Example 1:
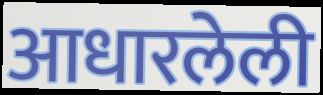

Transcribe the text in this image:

आधारलेली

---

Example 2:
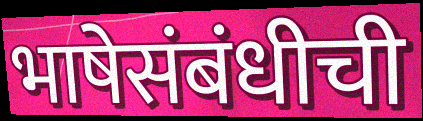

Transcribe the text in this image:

भाषेसंबंधीची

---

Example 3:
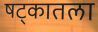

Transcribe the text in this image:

षट्कातला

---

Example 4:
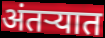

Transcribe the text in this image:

अंतऱ्यात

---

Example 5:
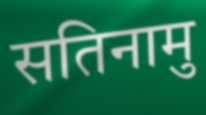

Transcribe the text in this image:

सतिनामु